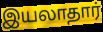
இயலாதார்